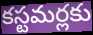
కస్టమర్లకు